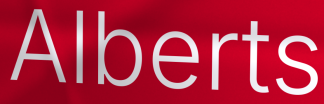
Alberts